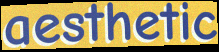
aesthetic